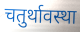
चतुर्थावस्था